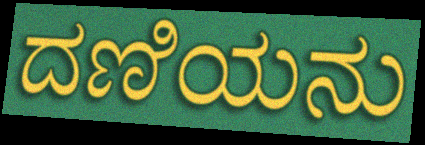
ದಣಿಯನು